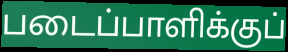
படைப்பாளிக்குப்